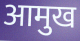
आमुख